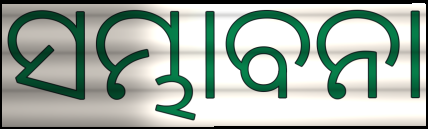
ସମ୍ଭାବନା